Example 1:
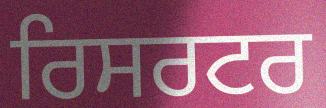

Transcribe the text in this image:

ਰਿਸਰਟਰ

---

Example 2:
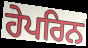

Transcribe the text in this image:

ਹੇਪਰਿਨ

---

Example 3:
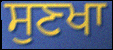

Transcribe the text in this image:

ਸੁਣਖਾ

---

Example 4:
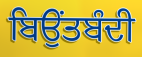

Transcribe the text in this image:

ਬਿਉਂਤਬੰਦੀ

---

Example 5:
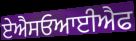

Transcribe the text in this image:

ਏਐਸਓਆਈਐਫ